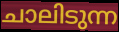
ചാലിടുന്ന